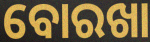
ବୋରଖା